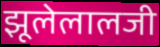
झूलेलालजी